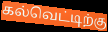
கல்வெட்டிற்கு